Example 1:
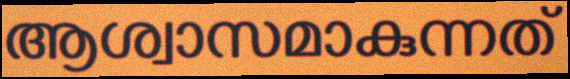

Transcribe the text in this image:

ആശ്വാസമാകുന്നത്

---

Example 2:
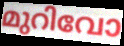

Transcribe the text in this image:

മുറിവോ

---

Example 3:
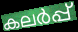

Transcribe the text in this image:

കലർപ്പ്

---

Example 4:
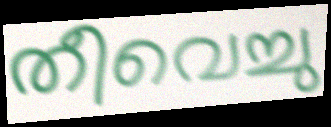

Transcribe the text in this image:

തീവെച്ചു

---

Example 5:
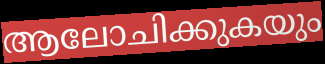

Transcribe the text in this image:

ആലോചിക്കുകയും